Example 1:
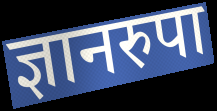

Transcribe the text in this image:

ज्ञानरुपा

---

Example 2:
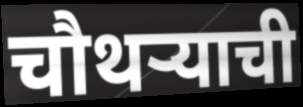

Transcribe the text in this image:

चौथऱ्याची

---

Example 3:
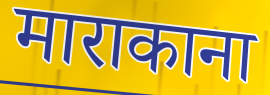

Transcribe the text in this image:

माराकाना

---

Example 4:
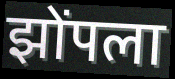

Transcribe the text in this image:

झोंपला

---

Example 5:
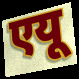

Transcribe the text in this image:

एयू